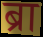
ब्रा